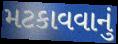
મટકાવવાનું